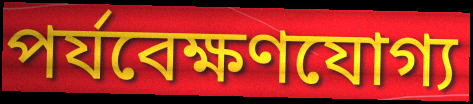
পর্যবেক্ষণযোগ্য